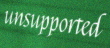
unsupported